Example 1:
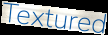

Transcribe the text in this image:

Textured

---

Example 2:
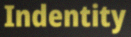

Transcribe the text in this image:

Indentity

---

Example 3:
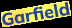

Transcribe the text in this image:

Garfield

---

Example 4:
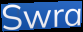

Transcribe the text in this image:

Swra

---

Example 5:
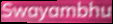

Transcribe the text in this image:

Swayambhu